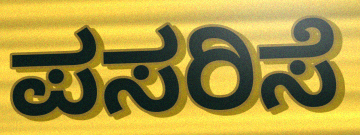
ಪಸರಿಸೆ